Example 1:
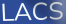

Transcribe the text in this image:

LACS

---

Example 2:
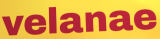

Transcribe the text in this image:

velanae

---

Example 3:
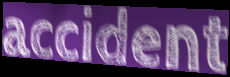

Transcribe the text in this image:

accident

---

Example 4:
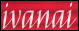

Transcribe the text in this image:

ivanai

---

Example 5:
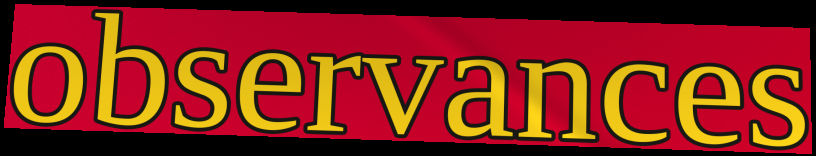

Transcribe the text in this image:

observances